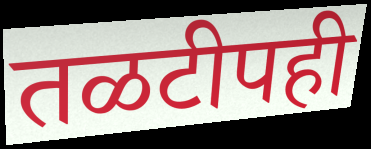
तळटीपही